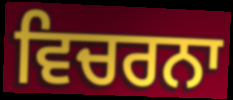
ਵਿਚਰਨਾ